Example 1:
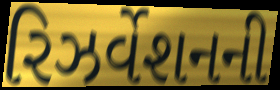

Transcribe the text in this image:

રિઝર્વેશનની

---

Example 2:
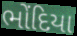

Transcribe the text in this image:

ભોંદિયા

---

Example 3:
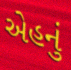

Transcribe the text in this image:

એહનું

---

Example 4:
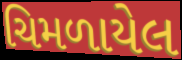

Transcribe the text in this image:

ચિમળાયેલ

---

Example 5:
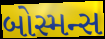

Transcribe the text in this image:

બોસ્મન્સ